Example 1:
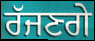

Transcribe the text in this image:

ਰੱਜਣਗੇ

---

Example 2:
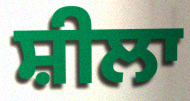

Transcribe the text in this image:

ਸ਼ੀਲਾ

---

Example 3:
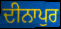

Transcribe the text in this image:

ਦੀਨਾਪੁਰ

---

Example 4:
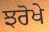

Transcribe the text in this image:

ਝਰੋਖੇ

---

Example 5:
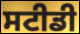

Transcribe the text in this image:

ਸਟੀਡੀ